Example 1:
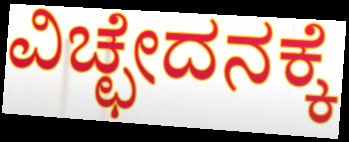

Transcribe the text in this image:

ವಿಚ್ಛೇದನಕ್ಕೆ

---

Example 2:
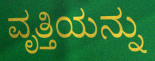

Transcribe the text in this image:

ವೃತ್ತಿಯನ್ನು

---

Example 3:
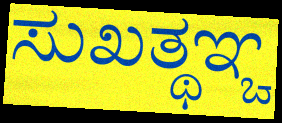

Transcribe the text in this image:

ಸುಖತ್ಥಞ್ಚ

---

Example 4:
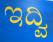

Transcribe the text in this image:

ಇದ್ವಿ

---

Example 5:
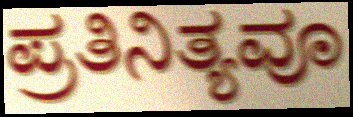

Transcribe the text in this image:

ಪ್ರತಿನಿತ್ಯವೂ